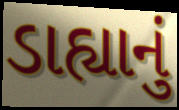
ડાહ્યાનું